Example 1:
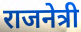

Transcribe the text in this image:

राजनेत्री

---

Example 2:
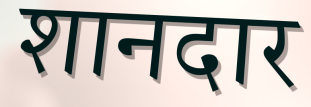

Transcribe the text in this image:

शानदार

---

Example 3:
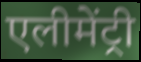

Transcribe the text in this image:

एलीमेंट्री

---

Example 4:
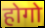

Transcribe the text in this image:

होगो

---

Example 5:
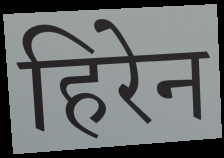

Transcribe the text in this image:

हिरेन